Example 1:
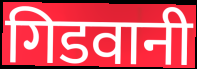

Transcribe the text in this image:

गिडवानी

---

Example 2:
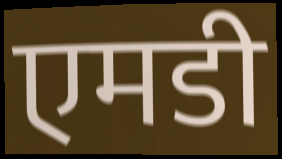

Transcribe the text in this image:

एमडी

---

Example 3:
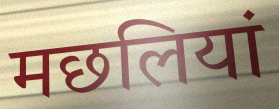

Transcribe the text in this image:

मछलियां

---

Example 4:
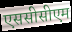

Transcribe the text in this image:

एससीसीएम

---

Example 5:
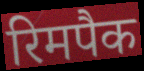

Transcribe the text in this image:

रिमपैक